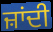
ਜ਼ਾਂਦੀ